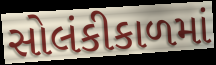
સોલંકીકાળમાં